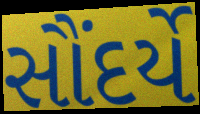
સૌંદર્યે